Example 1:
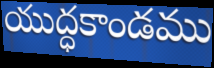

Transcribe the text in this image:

యుద్ధకాండము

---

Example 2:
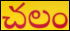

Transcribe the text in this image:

చలం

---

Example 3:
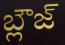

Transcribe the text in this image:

బ్లౌజ్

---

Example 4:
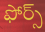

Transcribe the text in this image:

ఫోర్స్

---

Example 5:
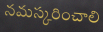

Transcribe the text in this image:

నమస్కరించాలి